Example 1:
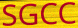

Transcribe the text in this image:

SGCC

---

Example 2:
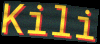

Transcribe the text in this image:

Kili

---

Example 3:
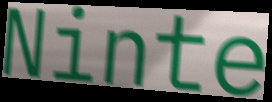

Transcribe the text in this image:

Ninte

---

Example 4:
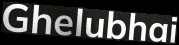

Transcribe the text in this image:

Ghelubhai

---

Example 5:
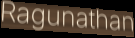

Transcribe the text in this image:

Ragunathan